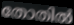
തോതിൽ